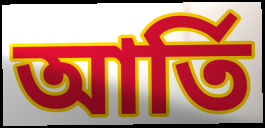
আর্তি